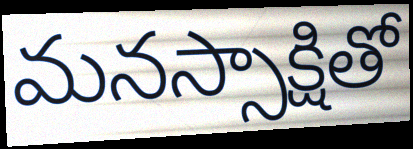
మనస్సాక్షితో